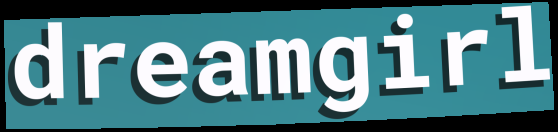
dreamgirl